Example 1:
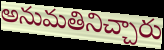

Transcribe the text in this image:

అనుమతినిచ్చారు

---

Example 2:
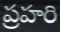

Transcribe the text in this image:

ప్రహరి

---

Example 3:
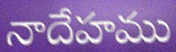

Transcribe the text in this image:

నాదేహము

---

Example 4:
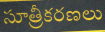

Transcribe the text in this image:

సూత్రీకరణలు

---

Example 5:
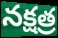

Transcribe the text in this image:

నక్షత్ర